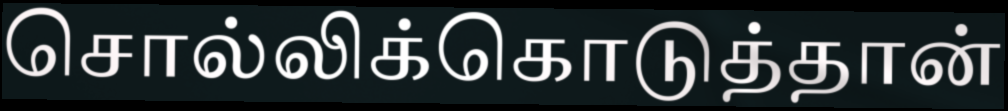
சொல்லிக்கொடுத்தான்